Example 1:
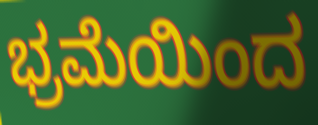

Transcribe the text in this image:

ಭ್ರಮೆಯಿಂದ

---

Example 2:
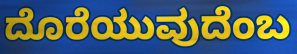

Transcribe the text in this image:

ದೊರೆಯುವುದೆಂಬ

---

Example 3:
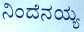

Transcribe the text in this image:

ನಿಂದೆನಯ್ಯ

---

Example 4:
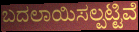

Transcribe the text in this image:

ಬದಲಾಯಿಸಲ್ಪಟ್ಟಿವೆ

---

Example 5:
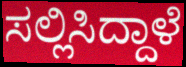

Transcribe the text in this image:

ಸಲ್ಲಿಸಿದ್ದಾಳೆ